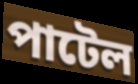
পাটেল